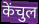
केंचुल